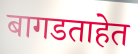
बागडताहेत